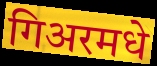
गिअरमधे